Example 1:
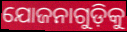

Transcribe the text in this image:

ଯୋଜନାଗୁଡ଼ିକୁ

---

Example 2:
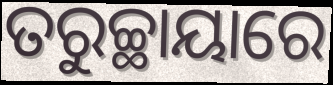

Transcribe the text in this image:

ତରୁଚ୍ଛାୟାରେ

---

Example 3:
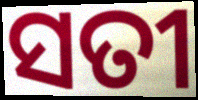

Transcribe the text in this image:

ସତୀ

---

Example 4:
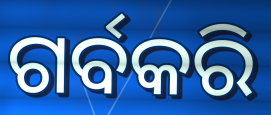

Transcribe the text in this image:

ଗର୍ବକରି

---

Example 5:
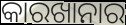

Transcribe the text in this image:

କାରଖାନାର